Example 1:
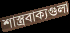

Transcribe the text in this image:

শাস্ত্রবাক্যগুলা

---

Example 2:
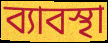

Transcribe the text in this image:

ব্যাবস্থা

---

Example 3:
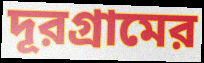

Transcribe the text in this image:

দূরগ্রামের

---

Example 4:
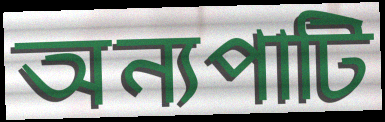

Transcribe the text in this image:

অন্যপাটি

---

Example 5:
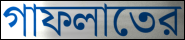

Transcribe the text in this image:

গাফলাতের